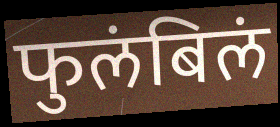
फुलंबिलं